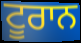
ਟੂਰਾਨ